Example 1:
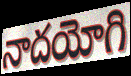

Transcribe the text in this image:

నాదయోగి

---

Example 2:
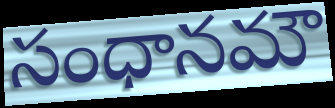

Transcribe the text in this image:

సంధానమౌ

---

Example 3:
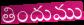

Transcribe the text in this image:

తిందుము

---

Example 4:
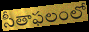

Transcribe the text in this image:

సీతాఫలంలో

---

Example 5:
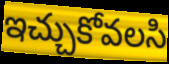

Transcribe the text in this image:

ఇచ్చుకోవలసి